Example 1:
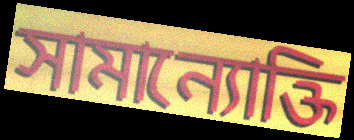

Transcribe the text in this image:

সামান্যোক্তি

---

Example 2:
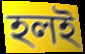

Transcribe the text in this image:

হলই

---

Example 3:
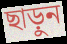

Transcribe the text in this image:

ছাড়ুন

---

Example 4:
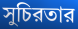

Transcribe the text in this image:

সুচিরতার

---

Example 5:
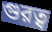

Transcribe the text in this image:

গুরত্ব